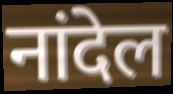
नांदेल